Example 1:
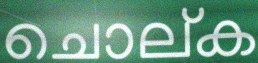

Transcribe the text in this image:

ചൊല്ക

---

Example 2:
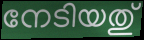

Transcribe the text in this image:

നേടിയതു്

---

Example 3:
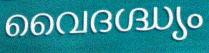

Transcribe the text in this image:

വൈദഗ്ദ്ധ്യം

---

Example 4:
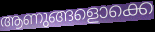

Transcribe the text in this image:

ആണുങ്ങളൊക്കെ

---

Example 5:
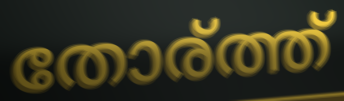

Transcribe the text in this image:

തോര്ത്ത്